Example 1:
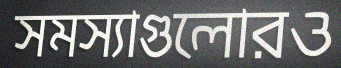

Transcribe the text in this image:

সমস্যাগুলোরও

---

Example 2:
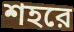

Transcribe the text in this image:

শহরে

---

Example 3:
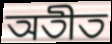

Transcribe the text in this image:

অতীত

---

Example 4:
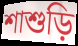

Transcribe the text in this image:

শাশুড়ি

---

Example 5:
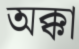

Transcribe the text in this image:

অক্কা